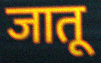
जातू